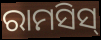
ରାମସିସ୍